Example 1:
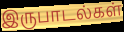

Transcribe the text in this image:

இருபாடல்கள்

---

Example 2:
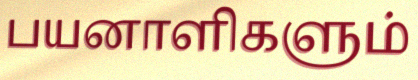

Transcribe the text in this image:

பயனாளிகளும்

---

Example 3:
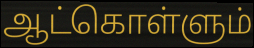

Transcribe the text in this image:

ஆட்கொள்ளும்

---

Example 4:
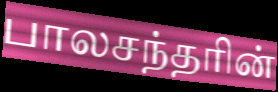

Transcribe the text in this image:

பாலசந்தரின்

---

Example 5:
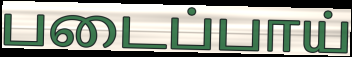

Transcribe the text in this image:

படைப்பாய்